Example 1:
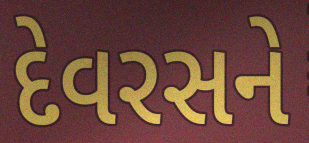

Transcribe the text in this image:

દેવરસને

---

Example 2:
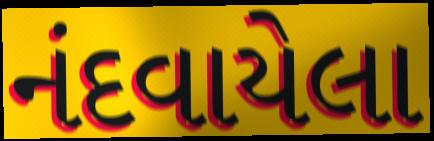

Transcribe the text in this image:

નંદવાયેલા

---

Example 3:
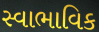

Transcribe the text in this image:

સ્વાભાવિક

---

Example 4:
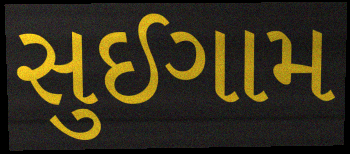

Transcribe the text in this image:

સુઈગામ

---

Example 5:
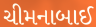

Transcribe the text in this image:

ચીમનાબાઈ